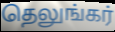
தெலுங்கர்